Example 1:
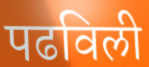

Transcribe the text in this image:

पढविली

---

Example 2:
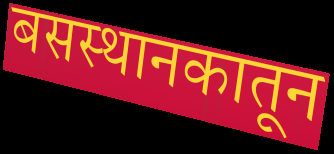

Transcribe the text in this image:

बसस्थानकातून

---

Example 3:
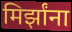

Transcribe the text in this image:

मिर्झांना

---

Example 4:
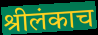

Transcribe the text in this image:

श्रीलंकाच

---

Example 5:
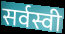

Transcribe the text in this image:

सर्वस्वी